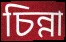
চিন্না